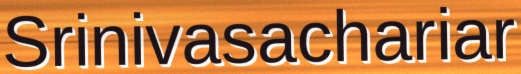
Srinivasachariar